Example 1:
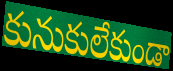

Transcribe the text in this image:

కునుకులేకుండా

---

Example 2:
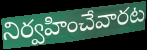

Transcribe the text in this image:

నిర్వహించేవారట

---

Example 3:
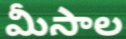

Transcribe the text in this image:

మీసాల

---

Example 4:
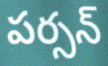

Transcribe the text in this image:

పర్సన్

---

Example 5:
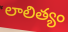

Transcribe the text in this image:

లాలిత్యం